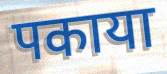
पकाया